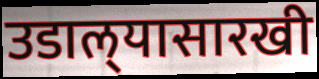
उडाल्यासारखी